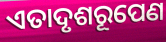
ଏତାଦୃଶରୂପେଣ